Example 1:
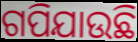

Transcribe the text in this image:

ଗପିଯାଉଛି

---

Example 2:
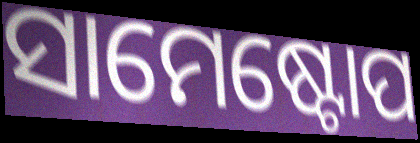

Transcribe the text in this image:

ସାମେଷ୍ଟୋପ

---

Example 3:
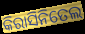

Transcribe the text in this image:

କିରାସିନିତେଲ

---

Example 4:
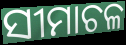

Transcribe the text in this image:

ସୀମାଚଳ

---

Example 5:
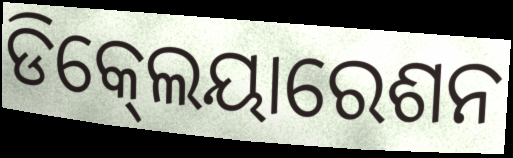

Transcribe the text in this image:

ଡିକ୍‍ଲେୟାରେଶନ